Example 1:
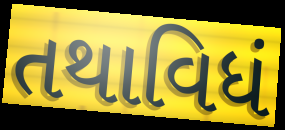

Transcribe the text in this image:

તથાવિધં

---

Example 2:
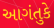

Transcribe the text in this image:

આગંતુકે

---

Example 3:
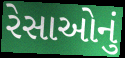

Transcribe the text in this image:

રેસાઓનું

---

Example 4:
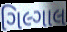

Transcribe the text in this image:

ગિલ્ગાલ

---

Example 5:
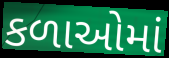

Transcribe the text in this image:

કળાઓમાં